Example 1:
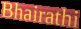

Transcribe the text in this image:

Bhairathi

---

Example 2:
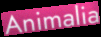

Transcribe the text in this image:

Animalia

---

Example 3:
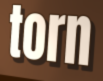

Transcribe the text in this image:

torn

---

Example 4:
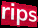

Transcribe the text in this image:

rips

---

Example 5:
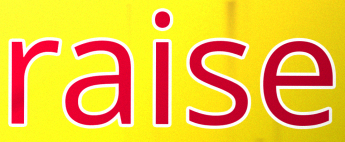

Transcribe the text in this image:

raise